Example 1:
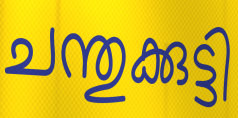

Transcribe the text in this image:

ചന്തുക്കുട്ടി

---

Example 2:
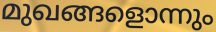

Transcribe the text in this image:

മുഖങ്ങളൊന്നും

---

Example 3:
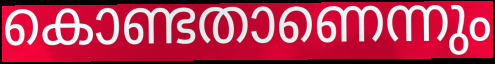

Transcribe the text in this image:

കൊണ്ടതാണെന്നും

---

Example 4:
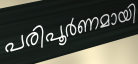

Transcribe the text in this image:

പരിപൂർണമായി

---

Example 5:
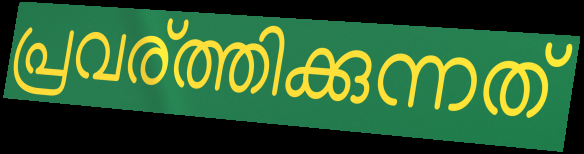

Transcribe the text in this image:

പ്രവര്ത്തിക്കുന്നത്